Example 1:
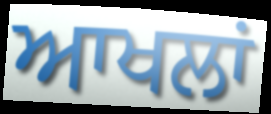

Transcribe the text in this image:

ਆਖਲਾਂ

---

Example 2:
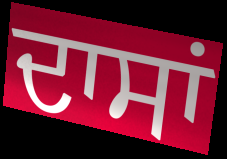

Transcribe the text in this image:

ਦਾਸਾਂ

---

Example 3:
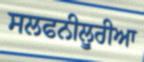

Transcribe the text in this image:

ਸਲਫਨੀਲੂਰੀਆ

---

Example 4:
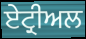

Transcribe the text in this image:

ਏਟ੍ਰੀਅਲ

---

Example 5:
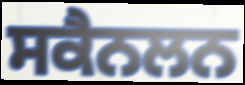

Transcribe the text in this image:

ਸਕੈਨਲਨ